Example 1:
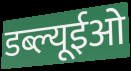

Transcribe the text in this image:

डब्ल्यूईओ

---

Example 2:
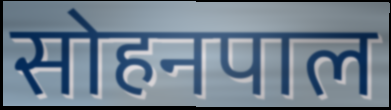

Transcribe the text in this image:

सोहनपाल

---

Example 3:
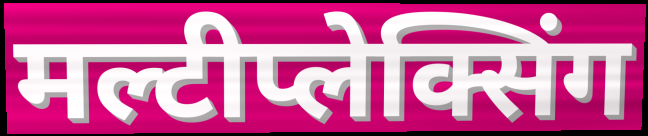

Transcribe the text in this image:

मल्टीप्लेक्सिंग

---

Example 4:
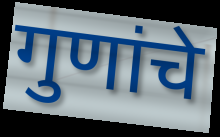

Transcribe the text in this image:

गुणांचे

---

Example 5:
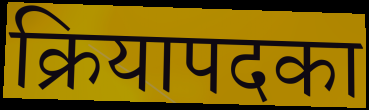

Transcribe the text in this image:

क्रियापदका